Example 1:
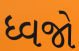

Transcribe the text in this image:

ધ્વજો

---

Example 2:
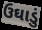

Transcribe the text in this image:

ઉઘાડું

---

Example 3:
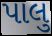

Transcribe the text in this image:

પાલુ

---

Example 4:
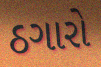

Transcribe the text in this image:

ઠગારો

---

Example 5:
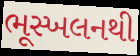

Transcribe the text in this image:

ભૂસ્ખલનથી